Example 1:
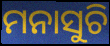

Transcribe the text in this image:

ମନାସୁଚି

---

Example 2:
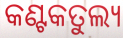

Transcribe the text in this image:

କଣ୍ଟକତୁଲ୍ୟ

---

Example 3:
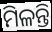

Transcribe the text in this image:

ମିଳନ୍ତି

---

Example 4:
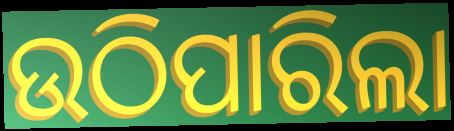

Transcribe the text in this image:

ଉଠିପାରିଲା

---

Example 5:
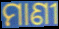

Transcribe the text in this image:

ମାଣୀ